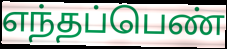
எந்தப்பெண்